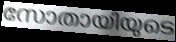
സോതായിയുടെ